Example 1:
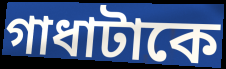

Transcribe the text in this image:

গাধাটাকে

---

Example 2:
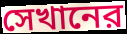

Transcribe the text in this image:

সেখানের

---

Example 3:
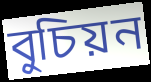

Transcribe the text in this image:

বুচিয়ন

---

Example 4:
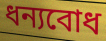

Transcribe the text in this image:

ধন্যবোধ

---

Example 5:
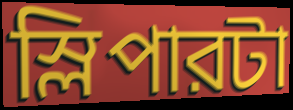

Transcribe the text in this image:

স্লিপারটা